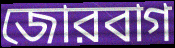
জোরবাগ